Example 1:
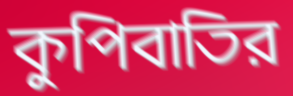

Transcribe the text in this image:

কুপিবাতির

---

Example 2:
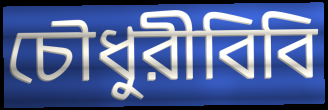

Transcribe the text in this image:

চৌধুরীবিবি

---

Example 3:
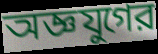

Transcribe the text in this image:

অজ্ঞযুগের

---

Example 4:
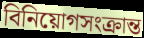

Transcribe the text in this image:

বিনিয়োগসংক্রান্ত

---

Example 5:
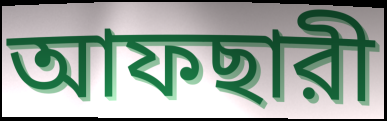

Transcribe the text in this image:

আফছারী